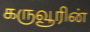
கருவூரின்